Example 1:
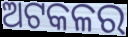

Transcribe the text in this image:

ଅଟକଳର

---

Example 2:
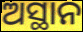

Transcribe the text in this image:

ଅସ୍ଥାନ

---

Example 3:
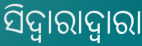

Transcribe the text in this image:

ସିଦ୍ୱାରାଦ୍ୱାରା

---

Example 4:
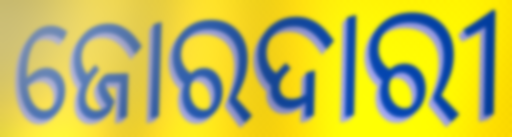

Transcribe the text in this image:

ଜୋରଦାରୀ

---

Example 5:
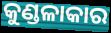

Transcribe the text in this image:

କୁଣ୍ଡଳାକାର